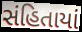
સંહિતાયાં